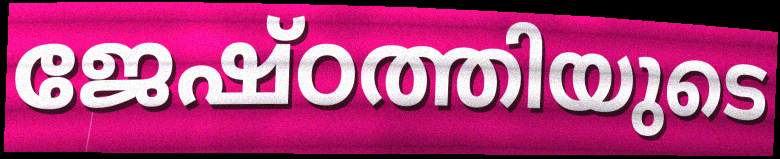
ജേഷ്ഠത്തിയുടെ